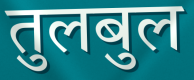
तुलबुल